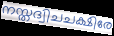
നസ്തദ്വിചചക്ഷിരേ